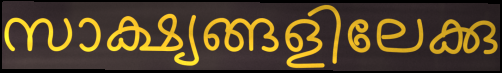
സാക്ഷ്യങ്ങളിലേക്കു